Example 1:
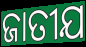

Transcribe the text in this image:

ଜାତୀଯ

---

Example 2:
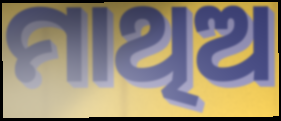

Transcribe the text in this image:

ମାଥିଅ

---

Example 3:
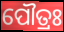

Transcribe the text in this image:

ପୌତ୍ରଃ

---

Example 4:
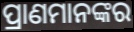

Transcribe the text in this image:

ପ୍ରାଣମାନଙ୍କର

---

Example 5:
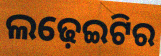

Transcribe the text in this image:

ଲଢ଼େଇଟିର